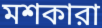
মশকারা